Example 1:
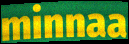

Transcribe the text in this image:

minnaa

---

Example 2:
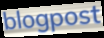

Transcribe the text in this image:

blogpost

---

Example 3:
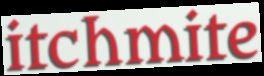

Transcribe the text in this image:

itchmite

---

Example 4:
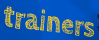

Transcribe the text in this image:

trainers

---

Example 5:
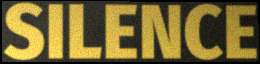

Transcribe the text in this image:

SILENCE